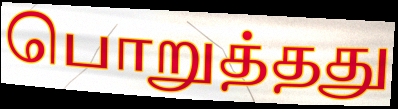
பொறுத்தது